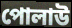
পোলাউ